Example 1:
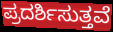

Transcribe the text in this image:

ಪ್ರದರ್ಶಿಸುತ್ತವೆ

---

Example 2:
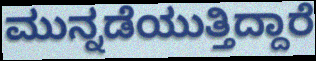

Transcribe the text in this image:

ಮುನ್ನಡೆಯುತ್ತಿದ್ದಾರೆ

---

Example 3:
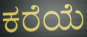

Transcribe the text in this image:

ಕರೆಯೆ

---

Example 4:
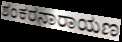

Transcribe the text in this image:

ಶಂಕರನಾರಾಯಣ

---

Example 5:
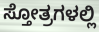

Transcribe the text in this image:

ಸ್ತೋತ್ರಗಳಲ್ಲಿ